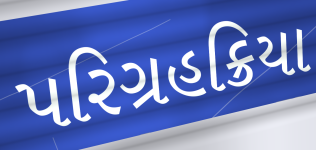
પરિગ્રહક્રિયા